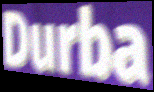
Durba